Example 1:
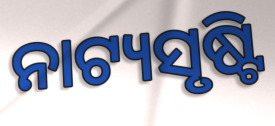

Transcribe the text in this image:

ନାଟ୍ୟସୃଷ୍ଟି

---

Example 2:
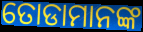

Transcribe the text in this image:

ତୋଡାମାନଙ୍କ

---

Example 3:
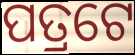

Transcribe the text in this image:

ପତ୍ରଟେ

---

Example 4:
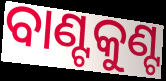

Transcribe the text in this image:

ବାଣ୍ଟକୁଣ୍ଟ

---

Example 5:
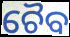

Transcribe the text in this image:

ଚୈବ